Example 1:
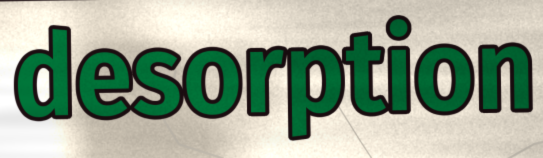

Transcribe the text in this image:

desorption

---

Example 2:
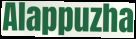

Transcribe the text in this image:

Alappuzha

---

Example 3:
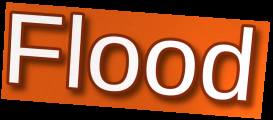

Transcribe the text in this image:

Flood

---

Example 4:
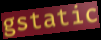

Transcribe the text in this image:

gstatic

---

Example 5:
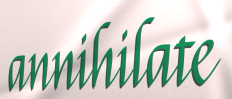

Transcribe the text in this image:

annihilate